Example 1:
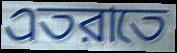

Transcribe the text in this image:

এতরাতে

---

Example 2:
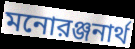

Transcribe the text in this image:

মনোরঞ্জনার্থ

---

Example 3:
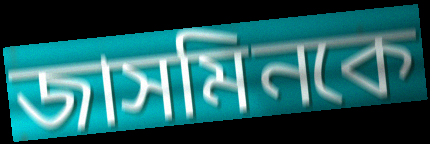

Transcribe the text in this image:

জাসমিনকে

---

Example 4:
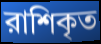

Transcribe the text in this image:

রাশিকৃত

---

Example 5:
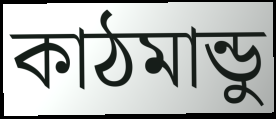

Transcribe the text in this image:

কাঠমান্ডু